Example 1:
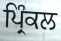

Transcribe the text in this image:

ਪ੍ਰਿੰਕਲ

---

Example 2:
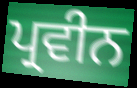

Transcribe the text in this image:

ਪ੍ਰਵੀਨ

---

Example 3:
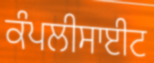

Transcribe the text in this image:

ਕੰਪਲੀਸਾਈਟ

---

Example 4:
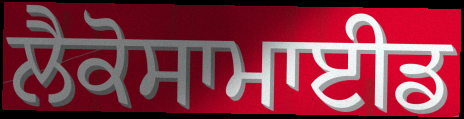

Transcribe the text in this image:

ਲੈਕੋਸਾਮਾਈਡ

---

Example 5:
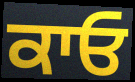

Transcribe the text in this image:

ਕਾਓ